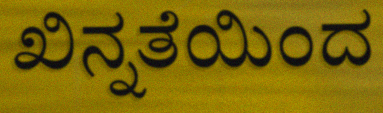
ಖಿನ್ನತೆಯಿಂದ